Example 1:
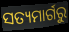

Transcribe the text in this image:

ସତ୍ୟମାର୍ଗରୁ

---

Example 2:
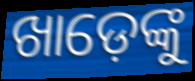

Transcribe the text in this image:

ଖାଡ଼େଙ୍କୁ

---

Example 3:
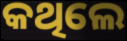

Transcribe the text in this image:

କଥିଲେ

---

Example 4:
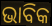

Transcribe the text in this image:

ଭାବିକ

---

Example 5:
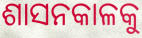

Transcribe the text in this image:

ଶାସନକାଳକୁ